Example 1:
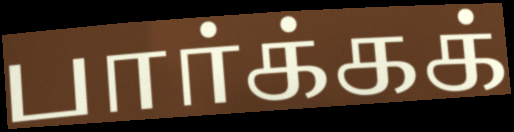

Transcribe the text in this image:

பார்க்கக்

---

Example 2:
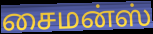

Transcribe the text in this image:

சைமன்ஸ்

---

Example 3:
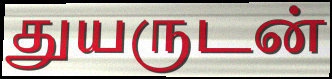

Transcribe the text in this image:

துயருடன்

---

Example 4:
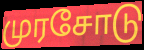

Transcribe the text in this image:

முரசோடு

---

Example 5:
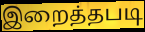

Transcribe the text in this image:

இறைத்தபடி